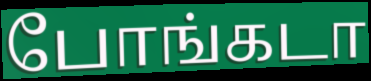
போங்கடா